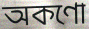
অকণো